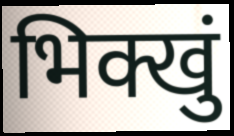
भिक्खुं